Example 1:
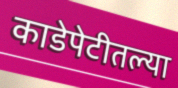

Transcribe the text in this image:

काडेपेटीतल्या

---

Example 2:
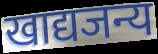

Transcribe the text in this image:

खाद्यजन्य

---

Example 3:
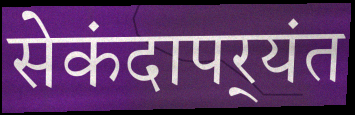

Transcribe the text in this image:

सेकंदापर्यंत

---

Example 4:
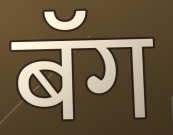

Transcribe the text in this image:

बॅग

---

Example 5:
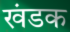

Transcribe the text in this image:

खंडक